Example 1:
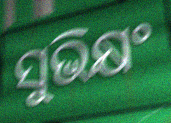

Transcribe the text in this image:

ସୁଭିକ୍ଷଂ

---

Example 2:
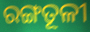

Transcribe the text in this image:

ରଙ୍ଗତୂଳୀ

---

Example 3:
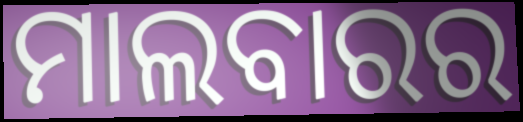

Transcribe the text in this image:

ମାଲବାରର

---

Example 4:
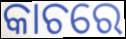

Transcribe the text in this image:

କାଚରେ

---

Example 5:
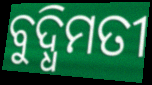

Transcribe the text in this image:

ବୁଦ୍ଧିମତୀ